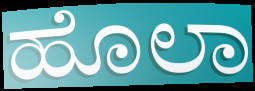
ಹೊಲಾ